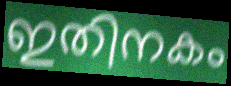
ഇതിനകം